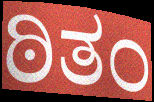
ಠಿತಂ